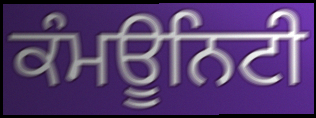
ਕੰਮਊਨਿਟੀ